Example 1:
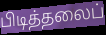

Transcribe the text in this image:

பிடித்தலைப்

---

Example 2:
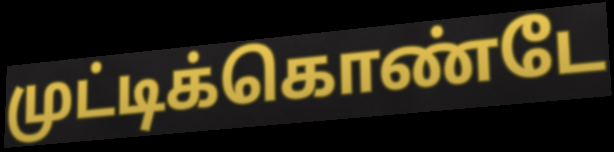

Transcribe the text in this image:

முட்டிக்கொண்டே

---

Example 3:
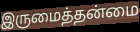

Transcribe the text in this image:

இருமைத்தன்மை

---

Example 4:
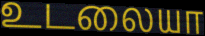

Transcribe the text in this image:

உடலையா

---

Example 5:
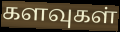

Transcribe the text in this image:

களவுகள்